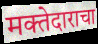
मक्तेदाराचा